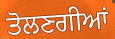
ਤੋਲਣਗੀਆਂ